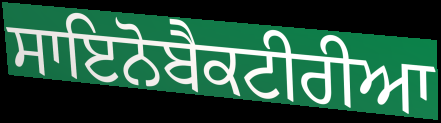
ਸਾਇਨੋਬੈਕਟੀਰੀਆ